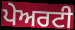
ਪੇਅਰਟੀ